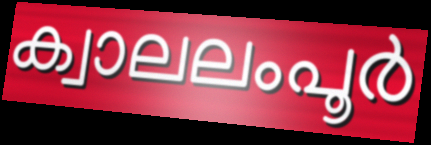
ക്വാലലംപൂർ